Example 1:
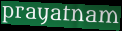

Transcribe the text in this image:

prayatnam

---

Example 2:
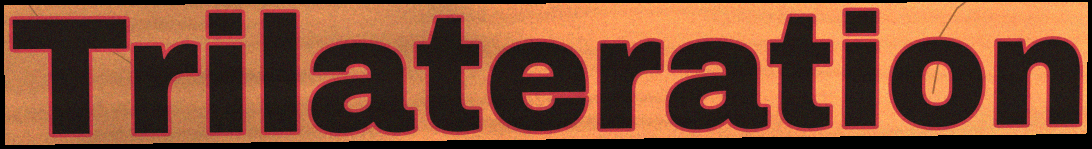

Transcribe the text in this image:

Trilateration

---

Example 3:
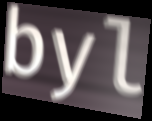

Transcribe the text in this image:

byl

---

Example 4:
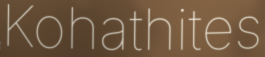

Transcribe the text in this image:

Kohathites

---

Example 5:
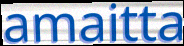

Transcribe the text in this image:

amaitta